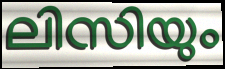
ലിസിയും